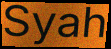
Syah